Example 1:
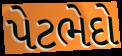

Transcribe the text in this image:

પેટભેદો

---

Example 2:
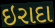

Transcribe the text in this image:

ઇરાદા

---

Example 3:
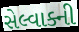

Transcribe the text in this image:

સેલ્વાક્ની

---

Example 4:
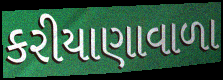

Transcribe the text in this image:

કરીયાણાવાળા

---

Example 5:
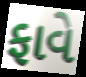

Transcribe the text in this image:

ફાવે